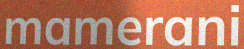
mamerani